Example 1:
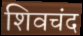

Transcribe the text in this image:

शिवचंद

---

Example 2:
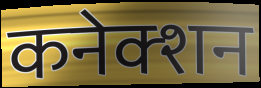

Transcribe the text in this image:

कनेक्‍शन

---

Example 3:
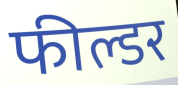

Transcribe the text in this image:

फील्डर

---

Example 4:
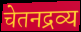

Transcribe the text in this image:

चेतनद्रव्य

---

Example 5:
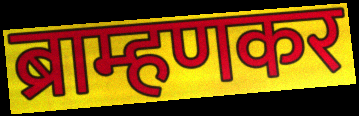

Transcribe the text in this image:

ब्राम्हणकर